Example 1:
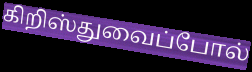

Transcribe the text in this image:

கிறிஸ்துவைப்போல்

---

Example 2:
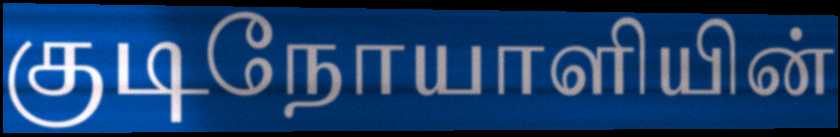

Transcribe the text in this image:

குடிநோயாளியின்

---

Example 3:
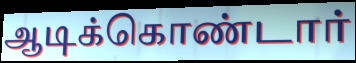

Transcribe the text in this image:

ஆடிக்கொண்டார்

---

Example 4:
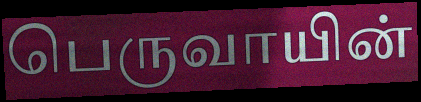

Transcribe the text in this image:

பெருவாயின்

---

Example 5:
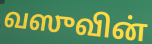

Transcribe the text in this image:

வஸுவின்